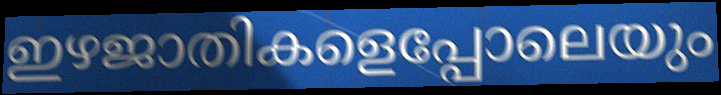
ഇഴജാതികളെപ്പോലെയും